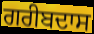
ਗਰੀਬਦਾਸ